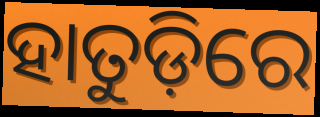
ହାତୁଡ଼ିରେ